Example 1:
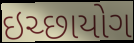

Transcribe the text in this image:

ઇચ્છાયોગ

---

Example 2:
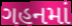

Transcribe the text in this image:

ગહનમાં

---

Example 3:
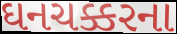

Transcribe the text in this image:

ઘનચક્કરના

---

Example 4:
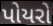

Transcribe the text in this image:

પોયરો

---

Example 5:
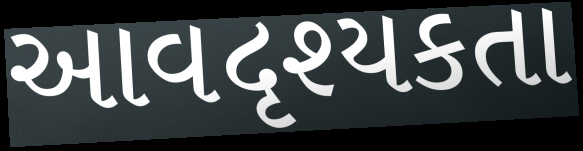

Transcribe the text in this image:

આવદૃશ્યકતા